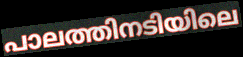
പാലത്തിനടിയിലെ